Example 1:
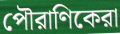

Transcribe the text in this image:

পৌরাণিকেরা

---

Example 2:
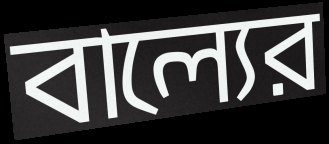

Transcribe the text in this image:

বাল্যের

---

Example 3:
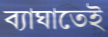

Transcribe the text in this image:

ব্যাঘাতেই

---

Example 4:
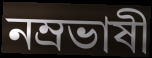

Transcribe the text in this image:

নম্রভাষী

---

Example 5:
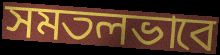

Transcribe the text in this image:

সমতলভাবে